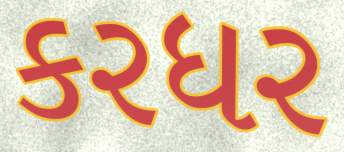
કરધર